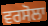
ਵਰਸੋਲਾ